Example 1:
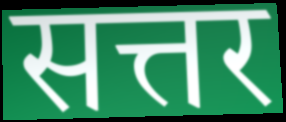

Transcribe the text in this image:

सत्तर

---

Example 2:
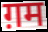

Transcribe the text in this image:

ग़म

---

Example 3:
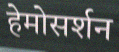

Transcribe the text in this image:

हेमोसर्शन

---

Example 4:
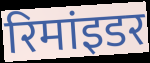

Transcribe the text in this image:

रिमांइडर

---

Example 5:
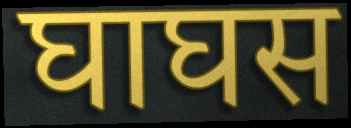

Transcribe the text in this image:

घाघस